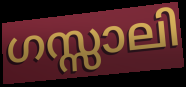
ഗസ്സാലി